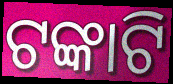
ଟଙ୍କାଟି